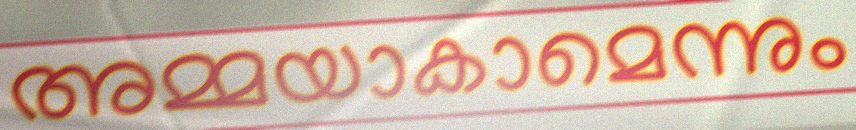
അമ്മയാകാമെന്നും